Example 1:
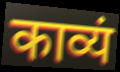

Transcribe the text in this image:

काव्यं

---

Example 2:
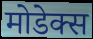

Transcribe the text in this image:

मोडेक्स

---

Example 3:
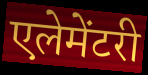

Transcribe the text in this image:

एलेमेंटरी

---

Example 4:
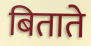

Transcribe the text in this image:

बिताते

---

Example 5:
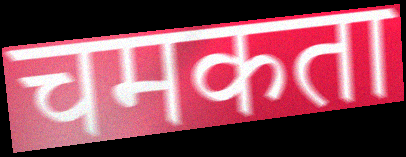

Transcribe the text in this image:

चमकता